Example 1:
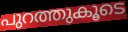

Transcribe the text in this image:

പുറത്തുകൂടെ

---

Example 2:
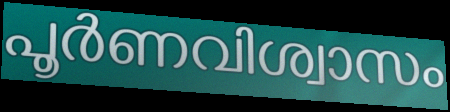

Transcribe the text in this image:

പൂർണവിശ്വാസം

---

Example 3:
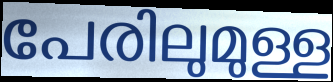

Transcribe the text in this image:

പേരിലുമുള്ള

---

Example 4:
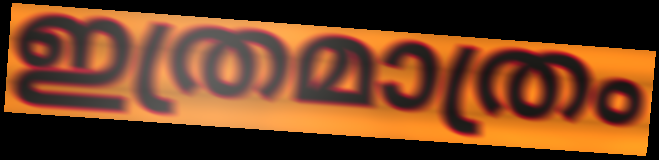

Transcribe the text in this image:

ഇത്രമാത്രം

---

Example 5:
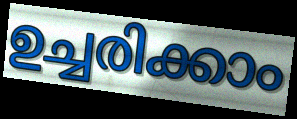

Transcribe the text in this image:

ഉച്ചരിക്കാം